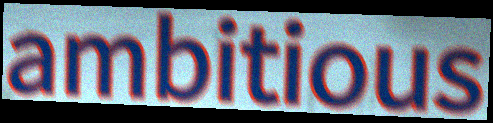
ambitious